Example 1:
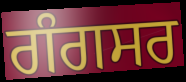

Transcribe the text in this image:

ਗੰਗਸਰ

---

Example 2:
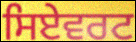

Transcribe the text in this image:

ਸਿਏਵਰਟ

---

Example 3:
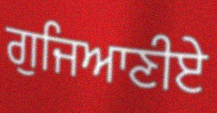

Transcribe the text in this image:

ਗੁਜਿਆਣੀਏ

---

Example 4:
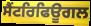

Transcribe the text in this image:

ਸੈਂਟਰਿਫਿਊਗਲ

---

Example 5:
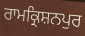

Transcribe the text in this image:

ਰਾਮਕ੍ਰਿਸ਼ਨਪੁਰ